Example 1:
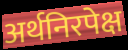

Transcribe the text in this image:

अर्थनिरपेक्ष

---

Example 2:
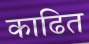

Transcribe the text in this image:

काढित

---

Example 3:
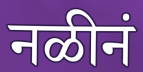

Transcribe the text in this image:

नळीनं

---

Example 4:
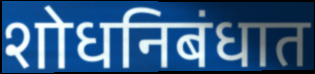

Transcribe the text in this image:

शोधनिबंधात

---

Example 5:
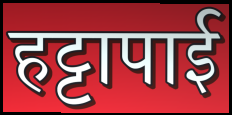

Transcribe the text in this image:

हट्टापाई